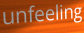
unfeeling